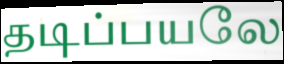
தடிப்பயலே